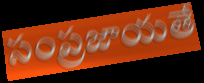
సంప్రజాయతే